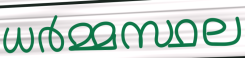
ധർമ്മസ്ഥല